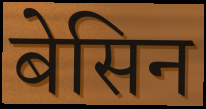
बेसिन